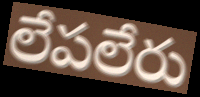
లేపలేరు